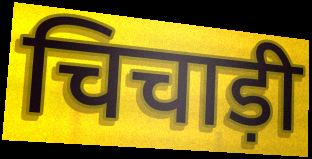
चिचाड़ी